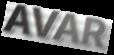
AVAR